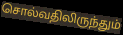
சொல்வதிலிருந்தும்